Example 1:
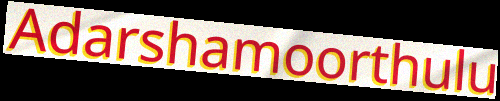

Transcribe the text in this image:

Adarshamoorthulu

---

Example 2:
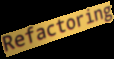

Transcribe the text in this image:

Refactoring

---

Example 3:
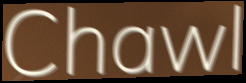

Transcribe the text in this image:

Chawl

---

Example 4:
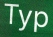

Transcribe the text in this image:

Typ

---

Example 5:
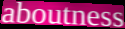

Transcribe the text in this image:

aboutness